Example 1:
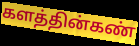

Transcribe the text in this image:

களத்தின்கண்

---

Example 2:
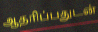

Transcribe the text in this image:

ஆதரிப்பதுடன்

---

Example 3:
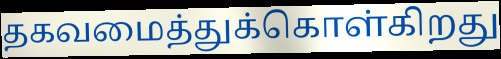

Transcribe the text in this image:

தகவமைத்துக்கொள்கிறது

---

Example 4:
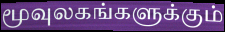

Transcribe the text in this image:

மூவுலகங்களுக்கும்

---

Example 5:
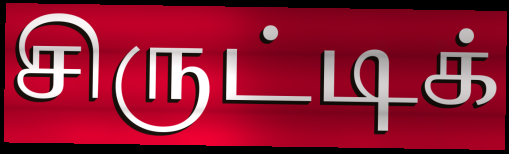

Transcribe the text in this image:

சிருட்டிக்